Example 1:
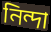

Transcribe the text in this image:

নিন্দা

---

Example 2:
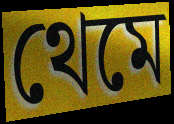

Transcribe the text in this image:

থেমে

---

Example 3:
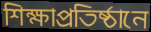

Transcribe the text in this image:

শিক্ষাপ্রতিষ্ঠানে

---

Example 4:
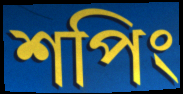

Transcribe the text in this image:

শপিং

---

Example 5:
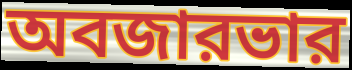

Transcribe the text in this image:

অবজারভার